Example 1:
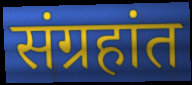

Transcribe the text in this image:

संग्रहांत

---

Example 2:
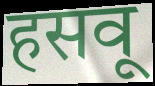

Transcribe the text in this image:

हसवू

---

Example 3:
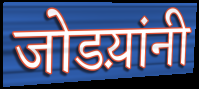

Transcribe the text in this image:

जोडय़ांनी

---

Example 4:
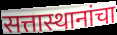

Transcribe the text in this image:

सत्तास्थानांचा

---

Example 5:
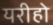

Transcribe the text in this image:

यरीहो